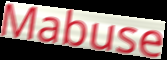
Mabuse